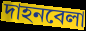
দাহনবেলা